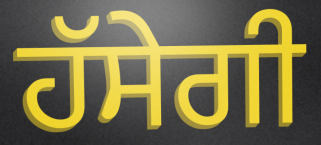
ਹੱਸੇਗੀ